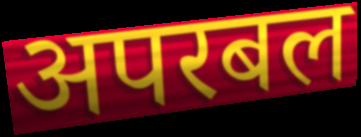
अपरबल